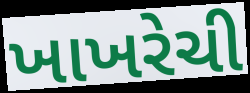
ખાખરેચી